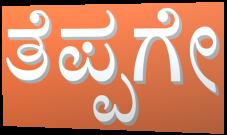
ತೆಪ್ಪಗೇ